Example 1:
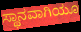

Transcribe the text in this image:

ಸ್ಥಾನವಾಗಿಯೂ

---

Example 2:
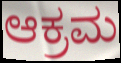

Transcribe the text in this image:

ಆಕ್ರಮ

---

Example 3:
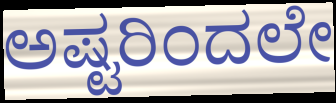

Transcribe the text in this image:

ಅಷ್ಟರಿಂದಲೇ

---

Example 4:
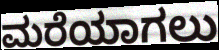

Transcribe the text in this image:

ಮರೆಯಾಗಲು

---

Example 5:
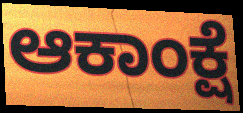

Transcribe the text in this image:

ಆಕಾಂಕ್ಷೆ